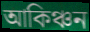
আকিঞ্চন